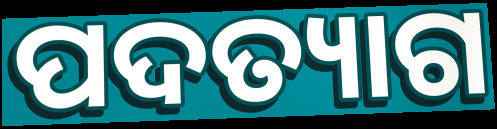
ପଦତ୍ୟାଗ